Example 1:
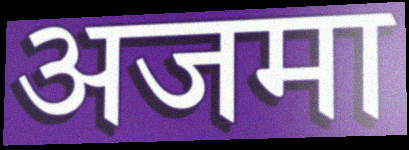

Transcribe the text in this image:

अजमा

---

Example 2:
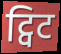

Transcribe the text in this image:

ट्विट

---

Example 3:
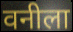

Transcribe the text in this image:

वनीला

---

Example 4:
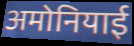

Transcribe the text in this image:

अमोनियाई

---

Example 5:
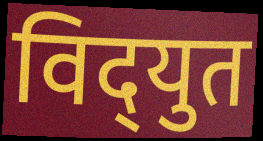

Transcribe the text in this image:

विद्‌युत